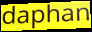
daphan